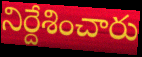
నిర్దేశించారు